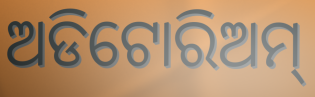
ଅଡିଟୋରିଅମ୍